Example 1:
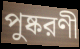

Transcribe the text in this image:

পুষ্করণী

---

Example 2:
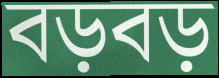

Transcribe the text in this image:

বড়বড়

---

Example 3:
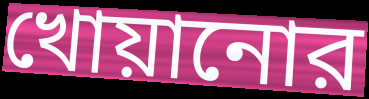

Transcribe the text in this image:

খোয়ানোর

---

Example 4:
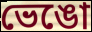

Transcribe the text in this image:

ভেঙো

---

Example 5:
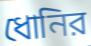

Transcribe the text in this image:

ধোনির